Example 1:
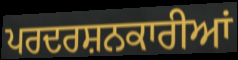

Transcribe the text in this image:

ਪਰਦਰਸ਼ਨਕਾਰੀਆਂ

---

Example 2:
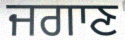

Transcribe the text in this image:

ਜਗਾਣ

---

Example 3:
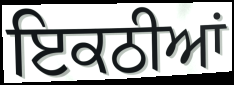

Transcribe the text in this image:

ਇਕਠੀਆਂ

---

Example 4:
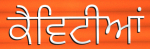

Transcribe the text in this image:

ਕੈਵਿਟੀਆਂ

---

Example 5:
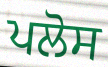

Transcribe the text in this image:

ਪਲੋਸ